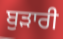
ਬੁੜਾਰੀ